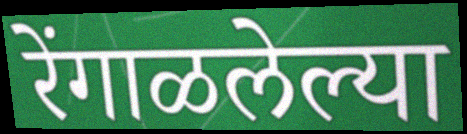
रेंगाळलेल्या